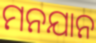
ମନଯାନ